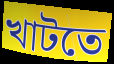
খাটতে